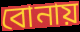
বোনায়